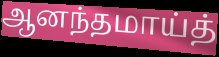
ஆனந்தமாய்த்